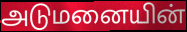
அடுமனையின்